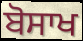
ਬੋਸਾਖ